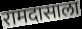
रामदासाला